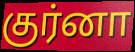
குர்னா